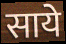
साये